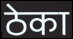
ठेका